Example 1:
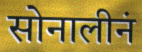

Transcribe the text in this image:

सोनालीनं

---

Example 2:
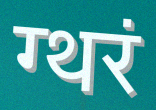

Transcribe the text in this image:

ग्थरं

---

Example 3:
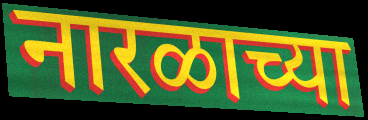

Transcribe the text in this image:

नारळाच्या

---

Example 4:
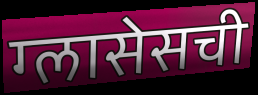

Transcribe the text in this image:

ग्लासेसची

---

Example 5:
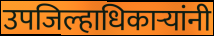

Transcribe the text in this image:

उपजिल्हाधिकाऱ्यांनी